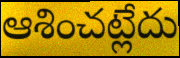
ఆశించట్లేదు